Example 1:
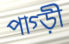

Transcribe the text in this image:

পাগ্ড়ী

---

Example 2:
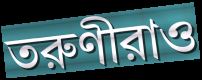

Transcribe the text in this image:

তরুণীরাও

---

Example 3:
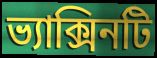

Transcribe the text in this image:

ভ্যাক্সিনটি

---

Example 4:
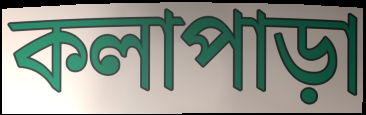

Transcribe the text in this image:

কলাপাড়া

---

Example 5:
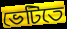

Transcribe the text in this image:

ভেটিতে